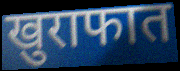
खुराफात